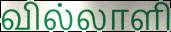
வில்லாளி